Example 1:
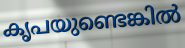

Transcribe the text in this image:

കൃപയുണ്ടെങ്കിൽ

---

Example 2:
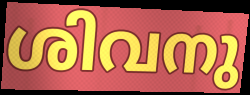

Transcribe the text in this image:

ശിവനു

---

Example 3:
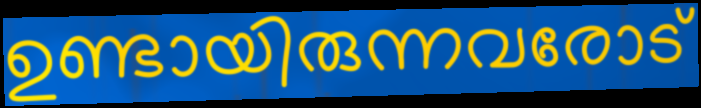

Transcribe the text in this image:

ഉണ്ടായിരുന്നവരോട്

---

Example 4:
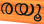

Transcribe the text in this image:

രയൂ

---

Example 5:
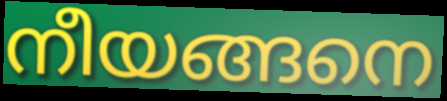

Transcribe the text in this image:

നീയങ്ങനെ